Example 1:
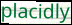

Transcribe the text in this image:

placidly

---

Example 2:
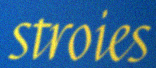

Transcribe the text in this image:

stroies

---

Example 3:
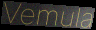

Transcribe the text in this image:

Vemula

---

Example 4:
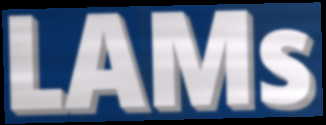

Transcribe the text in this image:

LAMs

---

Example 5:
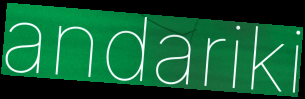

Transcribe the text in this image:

andariki